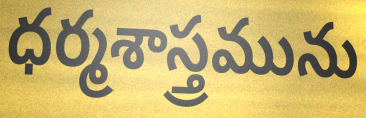
ధర్మశాస్త్రమును